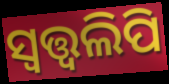
ସ୍ୱତ୍ତ୍ୱଲିପି